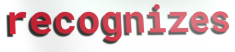
recognizes